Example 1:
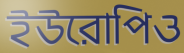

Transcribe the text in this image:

ইউরোপিও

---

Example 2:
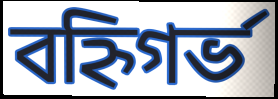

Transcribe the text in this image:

বহ্নিগর্ভ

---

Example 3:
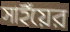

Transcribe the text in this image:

সাইঁয়ের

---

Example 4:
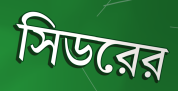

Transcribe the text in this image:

সিডরের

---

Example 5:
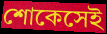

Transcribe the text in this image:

শোকেসেই